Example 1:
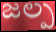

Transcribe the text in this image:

జల్ప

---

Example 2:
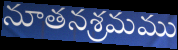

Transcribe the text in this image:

నూతనశ్రమము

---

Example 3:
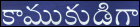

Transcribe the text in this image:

కాముకుడిగా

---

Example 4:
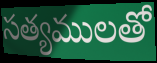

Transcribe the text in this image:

సత్యములతో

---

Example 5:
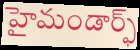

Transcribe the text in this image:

హైమండార్ఫ్